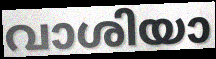
വാശിയാ